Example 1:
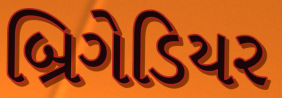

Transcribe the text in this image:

બ્રિગેડિયર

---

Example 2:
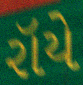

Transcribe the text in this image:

રૉયે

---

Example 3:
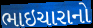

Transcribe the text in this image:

ભાઇચારાનો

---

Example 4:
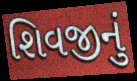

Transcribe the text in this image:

શિવજીનું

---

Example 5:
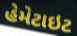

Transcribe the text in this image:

હેમેટાઇટ